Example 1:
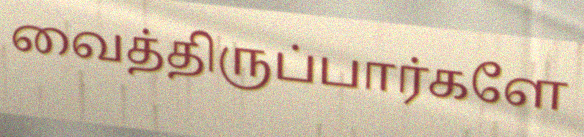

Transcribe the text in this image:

வைத்திருப்பார்களே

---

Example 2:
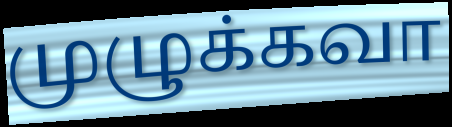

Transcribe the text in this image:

முழுக்கவா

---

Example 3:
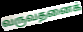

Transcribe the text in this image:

வருவதனைக்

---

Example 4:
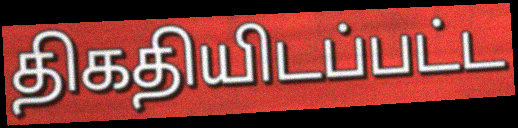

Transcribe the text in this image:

திகதியிடப்பட்ட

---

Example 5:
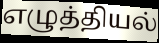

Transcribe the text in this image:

எழுத்தியல்